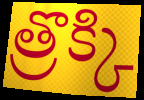
త్రొక్కి